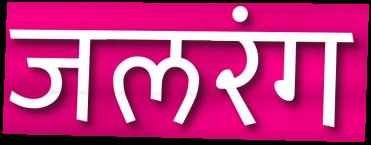
जलरंग